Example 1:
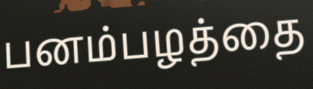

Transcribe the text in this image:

பனம்பழத்தை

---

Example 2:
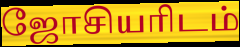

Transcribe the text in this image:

ஜோசியரிடம்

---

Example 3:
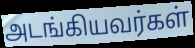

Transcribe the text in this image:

அடங்கியவர்கள்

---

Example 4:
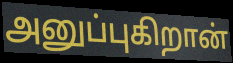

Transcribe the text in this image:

அனுப்புகிறான்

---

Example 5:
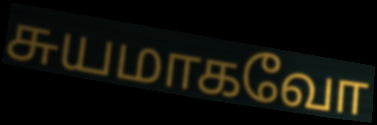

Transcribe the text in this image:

சுயமாகவோ